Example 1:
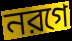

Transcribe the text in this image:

নরগে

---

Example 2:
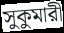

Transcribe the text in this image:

সুকুমারী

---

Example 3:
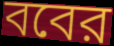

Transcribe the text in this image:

ববের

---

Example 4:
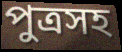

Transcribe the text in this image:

পুত্রসহ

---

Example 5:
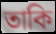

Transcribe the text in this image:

তাকি